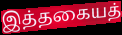
இத்தகையத்